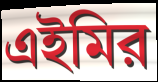
এইমির